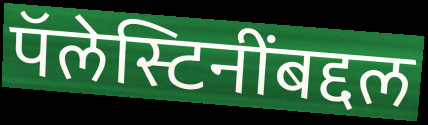
पॅलेस्टिनींबद्दल